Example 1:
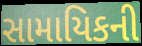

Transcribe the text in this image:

સામાયિકની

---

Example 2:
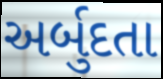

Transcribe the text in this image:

અર્બુદતા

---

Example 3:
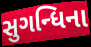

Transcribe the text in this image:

સુગન્ધિના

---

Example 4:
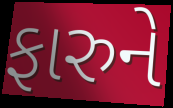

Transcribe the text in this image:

ફારુને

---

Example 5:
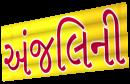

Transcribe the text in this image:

અંજલિની